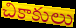
చికాకులు